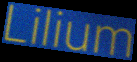
Lilium